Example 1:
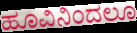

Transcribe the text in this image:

ಹೂವಿನಿಂದಲೂ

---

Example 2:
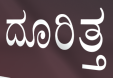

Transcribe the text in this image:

ದೂರಿತ್ತ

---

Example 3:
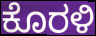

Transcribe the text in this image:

ಕೊರಳಿ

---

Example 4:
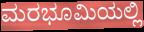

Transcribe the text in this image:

ಮರಭೂಮಿಯಲ್ಲಿ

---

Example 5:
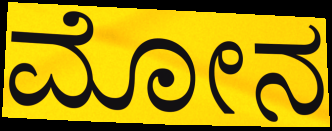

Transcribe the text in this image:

ಮೋನ